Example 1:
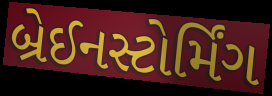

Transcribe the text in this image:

બ્રેઈનસ્ટોર્મિંગ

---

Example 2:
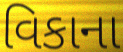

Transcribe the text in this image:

વિકાના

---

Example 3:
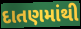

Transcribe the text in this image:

દાતણમાંથી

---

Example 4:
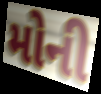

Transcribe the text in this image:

મોની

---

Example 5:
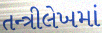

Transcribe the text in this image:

તન્ત્રીલેખમાં